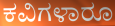
ಕವಿಗಳಾರೂ